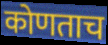
कोणताच